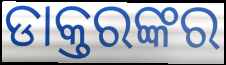
ଡାକ୍ତରଙ୍କର